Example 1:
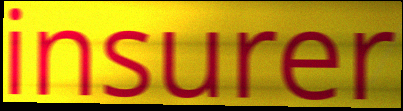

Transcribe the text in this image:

insurer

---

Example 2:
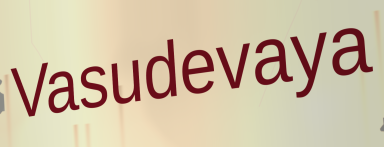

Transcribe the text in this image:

Vasudevaya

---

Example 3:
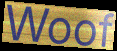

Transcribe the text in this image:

Woof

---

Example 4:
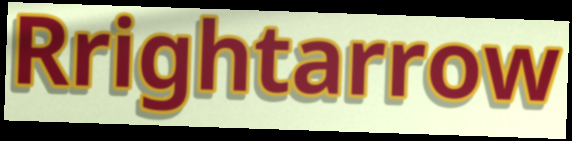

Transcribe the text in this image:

Rrightarrow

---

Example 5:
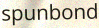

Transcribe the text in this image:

spunbond